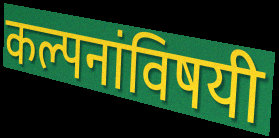
कल्पनांविषयी